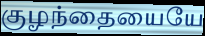
குழந்தையையே